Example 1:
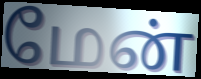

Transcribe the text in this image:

மேன்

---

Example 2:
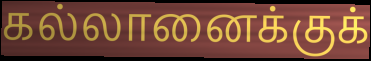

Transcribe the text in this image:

கல்லானைக்குக்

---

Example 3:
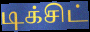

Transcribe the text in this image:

டிக்சிட்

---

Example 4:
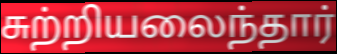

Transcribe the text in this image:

சுற்றியலைந்தார்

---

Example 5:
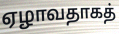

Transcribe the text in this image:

ஏழாவதாகத்